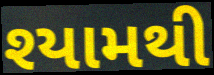
શ્યામથી